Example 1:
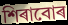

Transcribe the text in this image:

শিৰাবোৰ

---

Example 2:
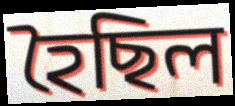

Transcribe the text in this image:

হৈছিল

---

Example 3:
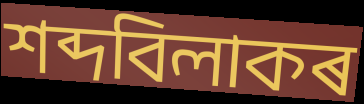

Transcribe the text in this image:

শব্দবিলাকৰ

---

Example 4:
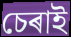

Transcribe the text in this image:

চেৰাই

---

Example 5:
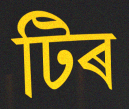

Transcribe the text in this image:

টিৰ